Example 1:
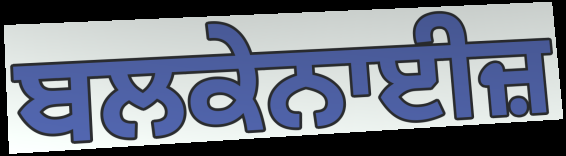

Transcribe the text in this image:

ਬਲਕੇਨਾਈਜ਼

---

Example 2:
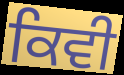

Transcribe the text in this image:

ਕਿਵੀ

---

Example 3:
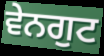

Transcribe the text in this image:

ਵੇਨਗੁਟ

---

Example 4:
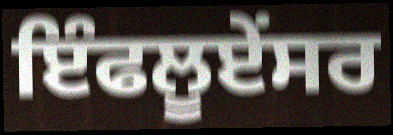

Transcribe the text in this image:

ਇੰਫਲੂਏਂਸਰ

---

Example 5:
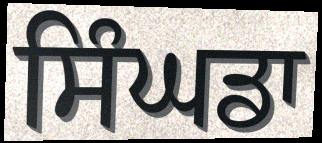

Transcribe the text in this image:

ਸਿੰਘਡਾ